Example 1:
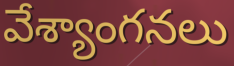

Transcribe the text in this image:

వేశ్యాంగనలు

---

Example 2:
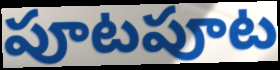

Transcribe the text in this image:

పూటపూట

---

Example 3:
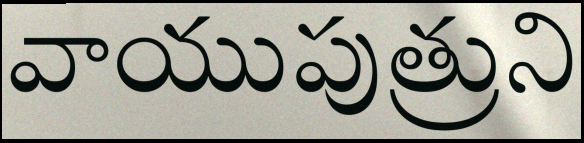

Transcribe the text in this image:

వాయుపుత్రుని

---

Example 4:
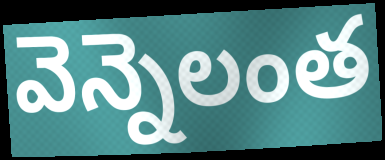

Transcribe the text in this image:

వెన్నెలంత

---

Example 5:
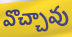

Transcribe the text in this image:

వొచ్చావు